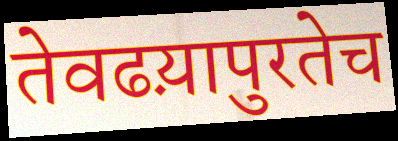
तेवढय़ापुरतेच